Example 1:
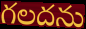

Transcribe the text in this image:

గలదను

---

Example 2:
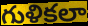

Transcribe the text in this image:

గుళికలా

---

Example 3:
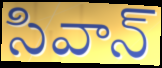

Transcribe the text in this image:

సివాన్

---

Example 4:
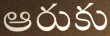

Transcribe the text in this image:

ఆరుకు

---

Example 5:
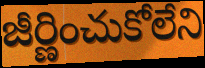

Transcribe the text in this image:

జీర్ణించుకోలేని